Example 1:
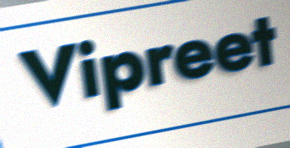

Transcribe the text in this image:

Vipreet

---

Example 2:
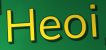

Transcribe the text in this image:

Heoi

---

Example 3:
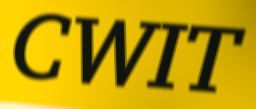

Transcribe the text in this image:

CWIT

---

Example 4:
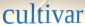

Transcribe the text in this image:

cultivar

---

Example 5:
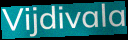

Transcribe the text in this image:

Vijdivala